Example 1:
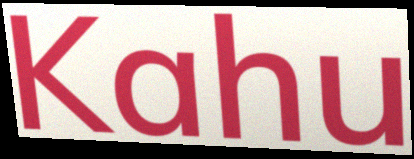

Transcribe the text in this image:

Kahu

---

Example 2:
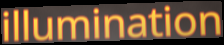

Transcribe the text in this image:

illumination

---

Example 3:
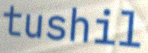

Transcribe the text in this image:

tushil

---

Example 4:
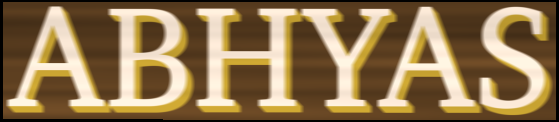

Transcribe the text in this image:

ABHYAS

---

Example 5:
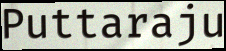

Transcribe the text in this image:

Puttaraju